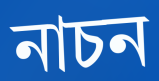
নাচন